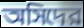
অসিদের